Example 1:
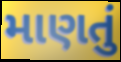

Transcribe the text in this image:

માણતું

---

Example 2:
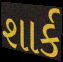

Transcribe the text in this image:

શાર્ક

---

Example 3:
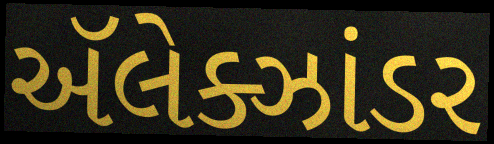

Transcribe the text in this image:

ઍલેક્ઝાંડર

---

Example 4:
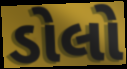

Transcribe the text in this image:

ડોલો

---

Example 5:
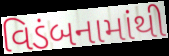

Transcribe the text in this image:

વિડંબનામાંથી